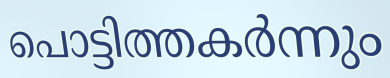
പൊട്ടിത്തകർന്നും